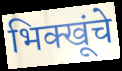
भिक्खूंचे